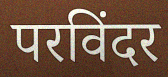
परविंदर